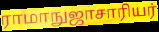
ராமாநுஜாசாரியர்